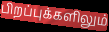
பிறப்புக்களிலும்